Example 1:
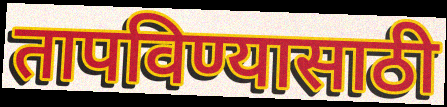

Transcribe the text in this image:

तापविण्यासाठी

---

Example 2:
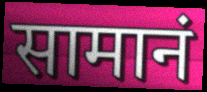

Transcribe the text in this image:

सामानं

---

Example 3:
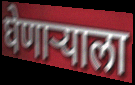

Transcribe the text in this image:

घेणार्‍याला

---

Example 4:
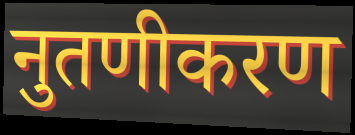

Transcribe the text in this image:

नुतणीकरण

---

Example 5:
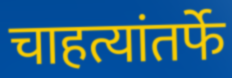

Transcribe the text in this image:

चाहत्यांतर्फे